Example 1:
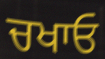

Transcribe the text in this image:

ਚਖਾਓ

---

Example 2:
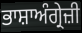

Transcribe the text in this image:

ਭਾਸ਼ਾਅੰਗ੍ਰੇਜ਼ੀ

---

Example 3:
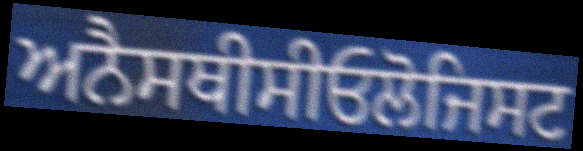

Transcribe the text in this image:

ਅਨੈਸਥੀਸੀਓਲੋਜਿਸਟ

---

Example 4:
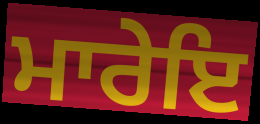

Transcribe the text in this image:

ਮਾਰੇਇ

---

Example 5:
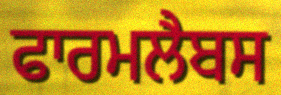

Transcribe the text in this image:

ਫਾਰਮਲੈਬਸ